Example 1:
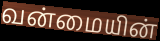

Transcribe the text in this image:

வன்மையின்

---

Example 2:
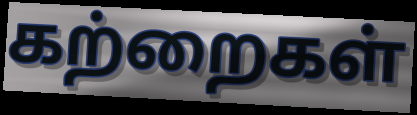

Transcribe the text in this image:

கற்றைகள்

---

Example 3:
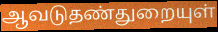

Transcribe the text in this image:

ஆவடுதண்துறையுள்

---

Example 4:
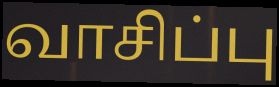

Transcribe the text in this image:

வாசிப்பு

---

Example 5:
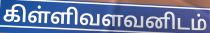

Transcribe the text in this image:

கிள்ளிவளவனிடம்